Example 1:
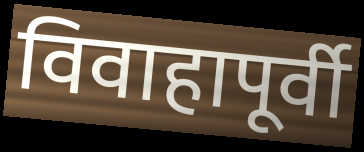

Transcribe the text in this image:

विवाहापूर्वी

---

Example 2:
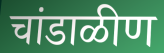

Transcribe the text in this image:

चांडाळीण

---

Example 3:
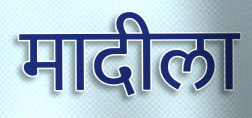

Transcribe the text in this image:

मादीला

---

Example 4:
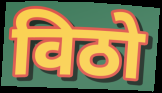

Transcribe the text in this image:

विठो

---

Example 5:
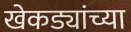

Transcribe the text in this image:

खेकड्यांच्या